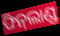
ଫିନ୍‌ଲାଣ୍ଡ